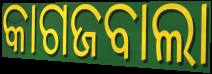
କାଗଜବାଲା